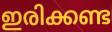
ഇരിക്കണ്ട